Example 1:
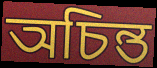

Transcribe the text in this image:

অচিন্ত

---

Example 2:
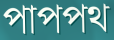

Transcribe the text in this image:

পাপপথ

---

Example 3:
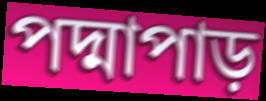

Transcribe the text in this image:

পদ্মাপাড়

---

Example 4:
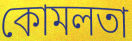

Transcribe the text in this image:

কোমলতা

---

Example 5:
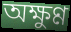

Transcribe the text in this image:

অক্ষুণ্ণ